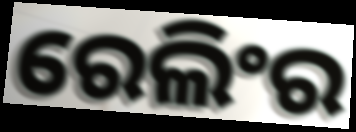
ରେଲିଂର